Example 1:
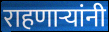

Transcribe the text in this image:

राहणार्‍यांनी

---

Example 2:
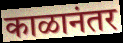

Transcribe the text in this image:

काळानंतर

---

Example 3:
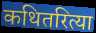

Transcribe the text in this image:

कथितरित्या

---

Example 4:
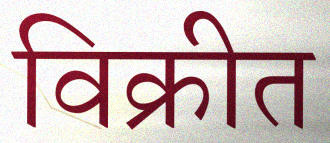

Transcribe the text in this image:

विक्रीत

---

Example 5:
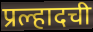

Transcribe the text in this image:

प्रल्हादची